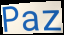
Paz